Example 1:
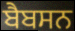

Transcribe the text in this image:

ਬੈਬਸਨ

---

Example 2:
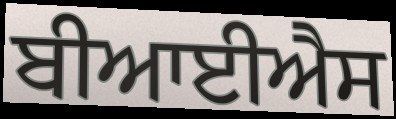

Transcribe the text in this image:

ਬੀਆਈਐਸ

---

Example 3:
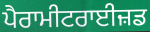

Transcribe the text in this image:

ਪੈਰਾਮੀਟਰਾਈਜ਼ਡ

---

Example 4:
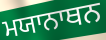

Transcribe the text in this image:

ਮਯਾਨਾਥਨ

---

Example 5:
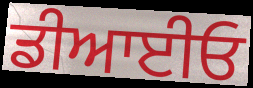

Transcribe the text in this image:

ਡੀਆਈਓ